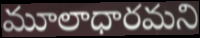
మూలాధారమని